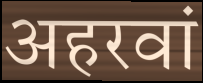
अहरवां